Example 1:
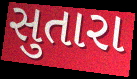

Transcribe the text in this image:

સુતારા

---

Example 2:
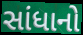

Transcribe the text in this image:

સાંધાનો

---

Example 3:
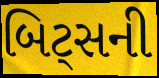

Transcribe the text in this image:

બિટ્સની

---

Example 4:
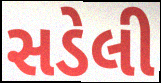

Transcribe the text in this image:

સડેલી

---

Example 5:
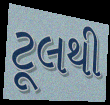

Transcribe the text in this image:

ટૂલથી